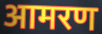
आमरण